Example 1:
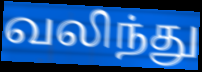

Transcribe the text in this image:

வலிந்து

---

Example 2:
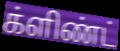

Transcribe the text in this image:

க்ளிண்ட்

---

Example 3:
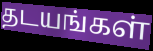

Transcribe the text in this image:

தடயங்கள்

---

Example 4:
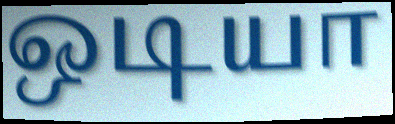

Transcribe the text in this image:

ஒடியா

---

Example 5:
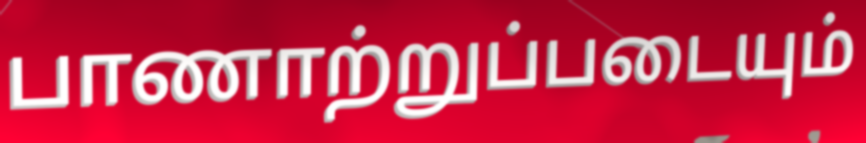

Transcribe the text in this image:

பாணாற்றுப்படையும்